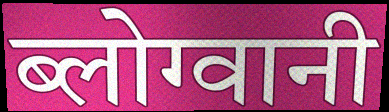
ब्लोग्वानी